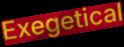
Exegetical